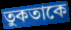
তুকতাকে